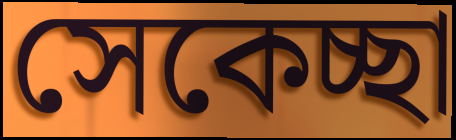
সেকেচ্ছা